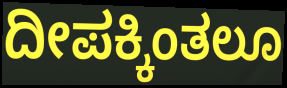
ದೀಪಕ್ಕಿಂತಲೂ